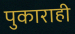
पुकाराही